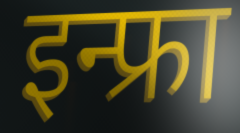
इन्फ्रा